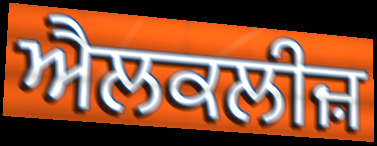
ਐਲਕਲੀਜ਼